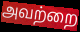
அவற்றை